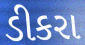
ડીકરા